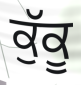
ਕੁੱਕੂ